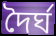
দৈৰ্ঘ